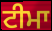
ਟੀਮਾ